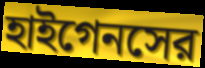
হাইগেনসের